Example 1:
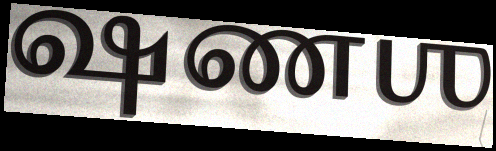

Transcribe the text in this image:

ஷணஶ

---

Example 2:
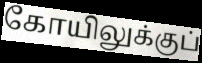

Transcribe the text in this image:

கோயிலுக்குப்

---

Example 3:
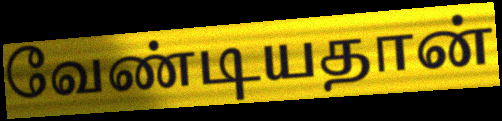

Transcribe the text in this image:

வேண்டியதான்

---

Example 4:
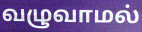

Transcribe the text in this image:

வழுவாமல்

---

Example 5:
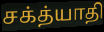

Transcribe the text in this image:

சக்த்யாதி